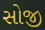
સોજી